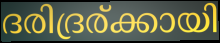
ദരിദ്രര്ക്കായി